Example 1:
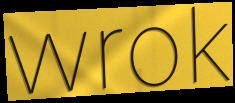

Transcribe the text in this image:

wrok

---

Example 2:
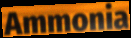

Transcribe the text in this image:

Ammonia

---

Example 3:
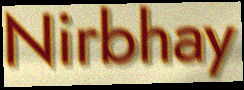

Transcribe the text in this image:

Nirbhay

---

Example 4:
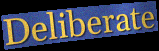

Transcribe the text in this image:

Deliberate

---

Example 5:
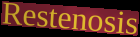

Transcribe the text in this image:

Restenosis